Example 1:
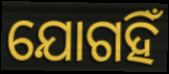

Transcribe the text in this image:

ଯୋଗହିଁ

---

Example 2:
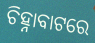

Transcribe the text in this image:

ଚିହ୍ନାବାଟରେ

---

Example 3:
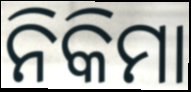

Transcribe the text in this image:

ନିକିମା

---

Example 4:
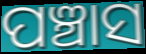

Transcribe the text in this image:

ପଞ୍ଚାସ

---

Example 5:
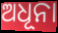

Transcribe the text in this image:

ଅଧୂନା